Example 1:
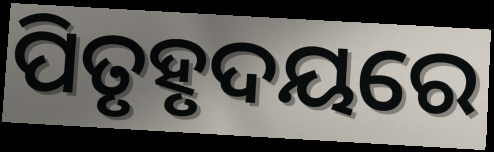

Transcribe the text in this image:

ପିତୃହୃଦୟରେ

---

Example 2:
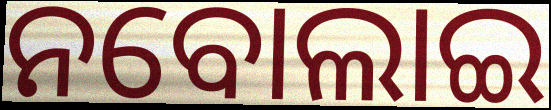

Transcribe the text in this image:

ନବୋଲାଇ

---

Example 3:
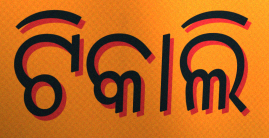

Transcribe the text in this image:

ଟିକାଲି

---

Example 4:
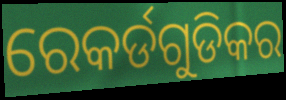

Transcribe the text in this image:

ରେକର୍ଡଗୁଡିକର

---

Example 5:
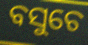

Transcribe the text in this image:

ବସୁଚେ